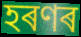
হৰণৰ